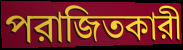
পরাজিতকারী